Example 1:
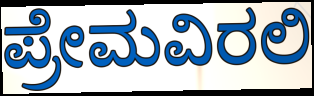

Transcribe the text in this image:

ಪ್ರೇಮವಿರಲಿ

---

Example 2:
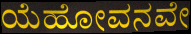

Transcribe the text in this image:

ಯೆಹೋವನವೇ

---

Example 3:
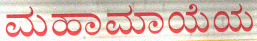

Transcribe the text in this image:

ಮಹಾಮಾಯೆಯ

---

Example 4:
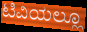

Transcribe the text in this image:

ಟಿವಿಯಲ್ಲೂ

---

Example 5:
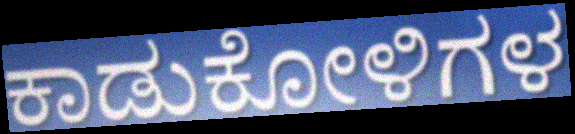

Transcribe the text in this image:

ಕಾಡುಕೋಳಿಗಳ